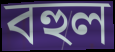
বহুল